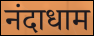
नंदाधाम